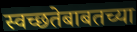
स्वच्छतेबाबतच्या